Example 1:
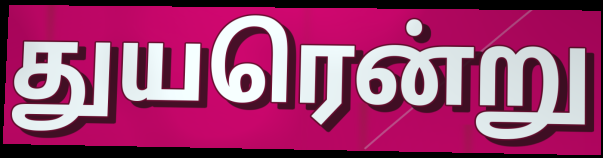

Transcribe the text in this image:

துயரென்று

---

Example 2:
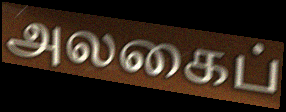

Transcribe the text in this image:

அலகைப்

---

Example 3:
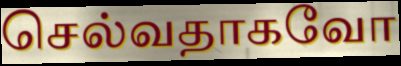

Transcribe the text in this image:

செல்வதாகவோ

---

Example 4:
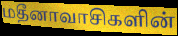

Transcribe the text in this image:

மதீனாவாசிகளின்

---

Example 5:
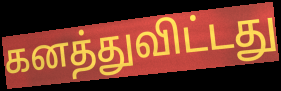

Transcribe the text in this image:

கனத்துவிட்டது